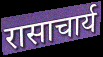
रासाचार्य